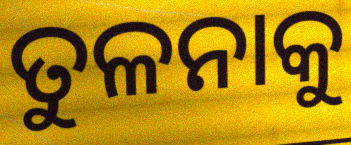
ତୁଳନାକୁ